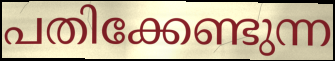
പതിക്കേണ്ടുന്ന